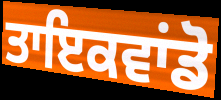
ਤਾਇਕਵਾਂਡੋ